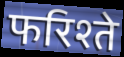
फरिश्ते